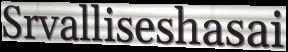
Srvalliseshasai